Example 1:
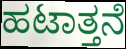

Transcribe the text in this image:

ಹಟಾತ್ತನೆ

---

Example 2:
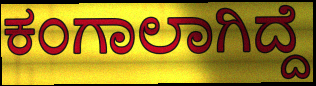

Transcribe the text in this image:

ಕಂಗಾಲಾಗಿದ್ದೆ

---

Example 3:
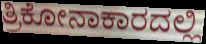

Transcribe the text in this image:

ತ್ರಿಕೋನಾಕಾರದಲ್ಲಿ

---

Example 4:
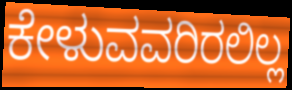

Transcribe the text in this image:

ಕೇಳುವವರಿರಲಿಲ್ಲ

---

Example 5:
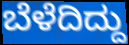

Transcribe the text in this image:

ಬೆಳೆದಿದ್ದು